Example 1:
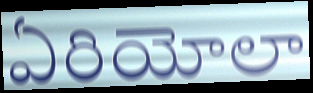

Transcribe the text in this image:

ఏరియోలా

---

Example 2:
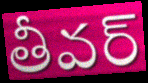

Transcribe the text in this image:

తీవర్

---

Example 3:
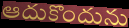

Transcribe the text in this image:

ఆదుకొందును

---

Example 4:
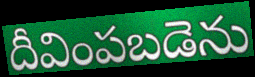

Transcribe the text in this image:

దీవింపబడెను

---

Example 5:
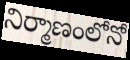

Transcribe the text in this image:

నిర్మాణంలోనో